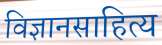
विज्ञानसाहित्य